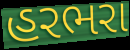
હરભરા